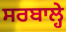
ਸਰਬਾਲ੍ਹੇ